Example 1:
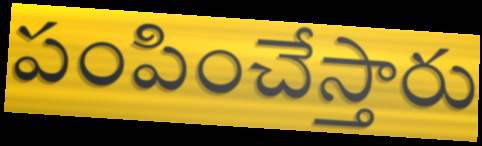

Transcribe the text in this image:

పంపించేస్తారు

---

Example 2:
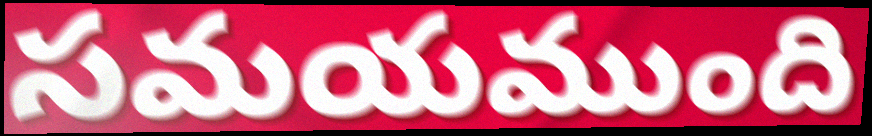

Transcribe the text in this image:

సమయముంది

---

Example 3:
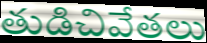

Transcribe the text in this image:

తుడిచివేతలు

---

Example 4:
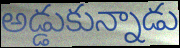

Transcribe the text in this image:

అడ్డుకున్నాడు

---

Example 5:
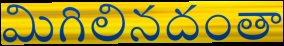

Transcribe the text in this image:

మిగిలినదంతా